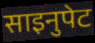
साइनुपेट